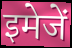
इमेजें